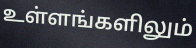
உள்ளங்களிலும்